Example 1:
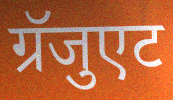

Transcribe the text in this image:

ग्रॅजुएट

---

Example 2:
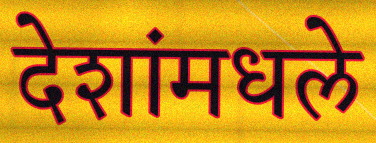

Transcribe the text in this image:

देशांमधले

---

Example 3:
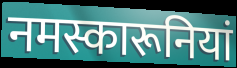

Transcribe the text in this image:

नमस्कारूनियां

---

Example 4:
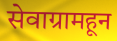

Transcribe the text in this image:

सेवाग्रामहून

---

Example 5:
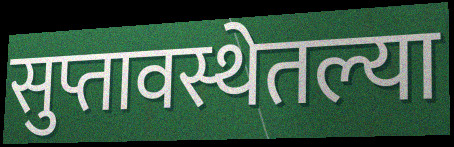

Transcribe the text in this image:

सुप्तावस्थेतल्या